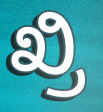
ಖ್ರಿ